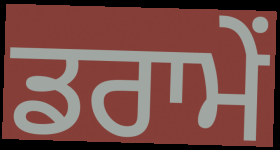
ਡਰਾਮੇਂ